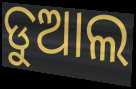
ଡୁଆଲ